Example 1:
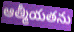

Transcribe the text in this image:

ఆత్మీయతను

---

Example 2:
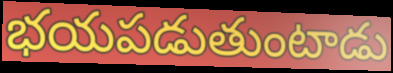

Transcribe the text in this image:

భయపడుతుంటాడు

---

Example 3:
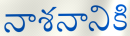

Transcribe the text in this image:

నాశనానికి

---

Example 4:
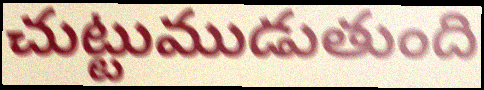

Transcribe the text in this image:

చుట్టుముడుతుంది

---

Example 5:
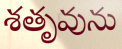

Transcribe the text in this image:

శతృవును